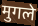
मुगले